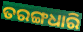
ତରଙ୍ଗଧାରି